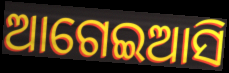
ଆଗେଇଆସି